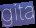
gita